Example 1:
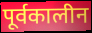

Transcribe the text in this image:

पूर्वकालीन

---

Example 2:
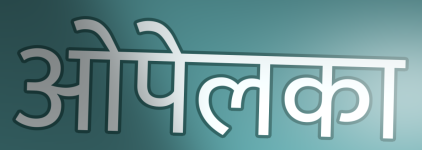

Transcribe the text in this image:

ओपेलका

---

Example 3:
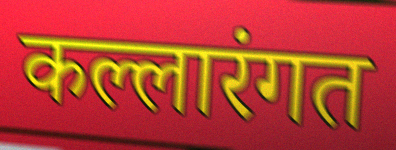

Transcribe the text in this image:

कल्लारंगत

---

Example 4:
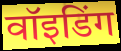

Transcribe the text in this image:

वॉइडिंग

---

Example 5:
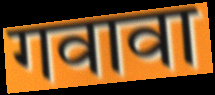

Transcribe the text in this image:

गवावा